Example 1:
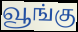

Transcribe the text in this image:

வூங்கு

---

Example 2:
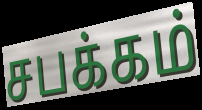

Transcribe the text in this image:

சபக்கம்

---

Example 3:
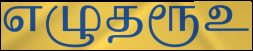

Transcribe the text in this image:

எழுதரூஉ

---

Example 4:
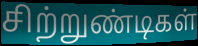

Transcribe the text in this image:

சிற்றுண்டிகள்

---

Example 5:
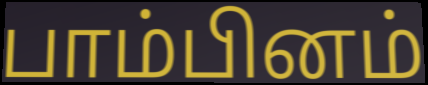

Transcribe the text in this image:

பாம்பினம்